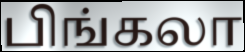
பிங்கலா